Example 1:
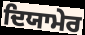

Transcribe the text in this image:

ਦਿਯਾਮੇਰ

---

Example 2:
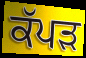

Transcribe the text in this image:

ਕੱਪੜ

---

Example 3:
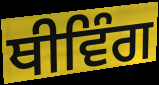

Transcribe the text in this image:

ਥੀਵਿੰਗ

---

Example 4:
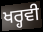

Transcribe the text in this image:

ਖਰ੍ਹਵੀ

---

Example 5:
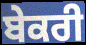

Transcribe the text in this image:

ਬੇਕਰੀ